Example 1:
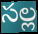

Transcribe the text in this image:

సల్ల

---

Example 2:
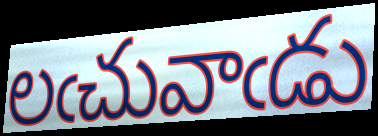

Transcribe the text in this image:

లఁచువాఁడు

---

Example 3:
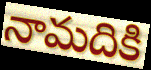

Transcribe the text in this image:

నామదికి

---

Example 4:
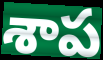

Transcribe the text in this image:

శాప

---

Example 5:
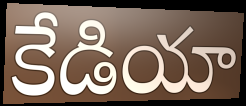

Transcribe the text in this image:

కేడియా